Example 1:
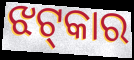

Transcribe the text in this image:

ଝଟ୍‍କାର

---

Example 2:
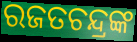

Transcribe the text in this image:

ରଜତଚନ୍ଦ୍ରଙ୍କ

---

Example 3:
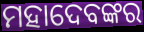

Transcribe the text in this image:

ମହାଦେବଙ୍କର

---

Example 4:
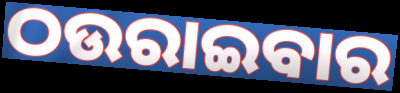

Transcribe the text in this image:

ଠଉରାଇବାର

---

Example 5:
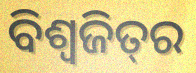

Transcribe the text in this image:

ବିଶ୍ୱଜିତ୍‌ର